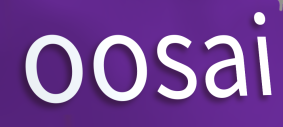
oosai